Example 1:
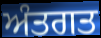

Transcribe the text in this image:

ਅੰਤਗਤ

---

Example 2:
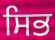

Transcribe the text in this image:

ਸਿਭ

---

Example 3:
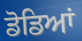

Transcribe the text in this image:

ਡੋਡਿਆਂ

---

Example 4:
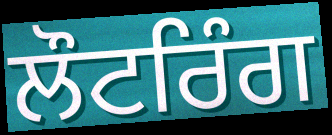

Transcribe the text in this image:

ਲੌਟਰਿੰਗ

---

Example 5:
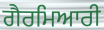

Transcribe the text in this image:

ਗੈਰਮਿਆਰੀ